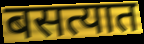
बसत्यात